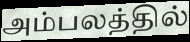
அம்பலத்தில்